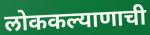
लोककल्याणाची